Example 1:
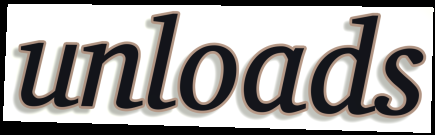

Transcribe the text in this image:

unloads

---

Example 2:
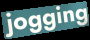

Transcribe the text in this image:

jogging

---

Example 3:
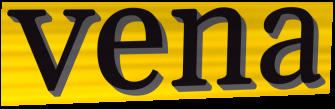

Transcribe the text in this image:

vena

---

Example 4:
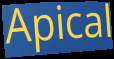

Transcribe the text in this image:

Apical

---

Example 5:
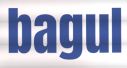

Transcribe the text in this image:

bagul